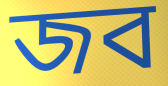
জব